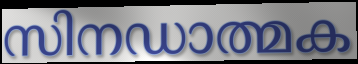
സിനഡാത്മക